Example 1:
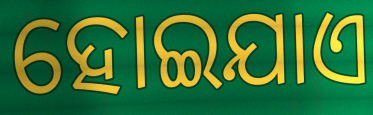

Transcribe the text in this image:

ହୋଇଯାଏ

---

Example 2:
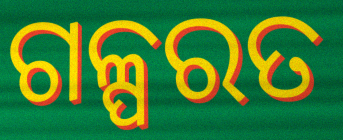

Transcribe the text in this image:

ଗଳ୍ପରତ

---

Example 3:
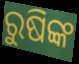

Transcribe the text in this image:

ରୁଷିଙ୍କ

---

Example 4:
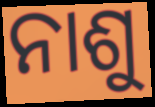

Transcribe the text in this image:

ନାଶୁ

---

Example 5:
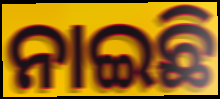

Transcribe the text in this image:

ନାଇଛି